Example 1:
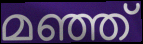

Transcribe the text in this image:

മഞ്ഞ്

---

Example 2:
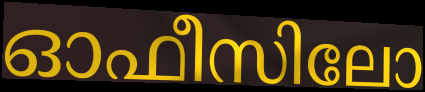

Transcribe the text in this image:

ഓഫീസിലോ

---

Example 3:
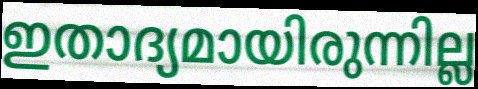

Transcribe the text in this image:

ഇതാദ്യമായിരുന്നില്ല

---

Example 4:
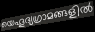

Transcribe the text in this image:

യെഹൂദ്യഗ്രാമങ്ങളിൽ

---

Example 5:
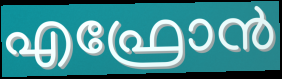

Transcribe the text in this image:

എഫ്രോൻ